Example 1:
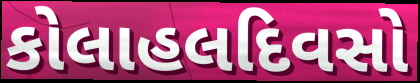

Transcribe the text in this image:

કોલાહલદિવસો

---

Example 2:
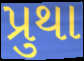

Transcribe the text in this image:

પ્રુથા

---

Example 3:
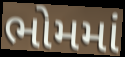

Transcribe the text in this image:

ભોમમાં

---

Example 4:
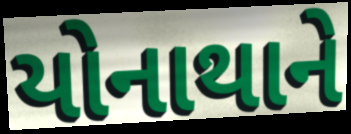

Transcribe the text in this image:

યોનાથાને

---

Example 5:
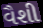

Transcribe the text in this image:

વૈશી